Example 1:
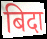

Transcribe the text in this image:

बिदा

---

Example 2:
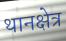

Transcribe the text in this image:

थानक्षेत्र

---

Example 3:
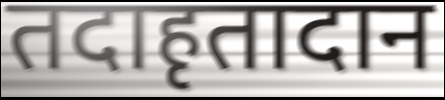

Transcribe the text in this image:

तदाहृतादान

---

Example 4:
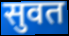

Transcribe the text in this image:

सुवत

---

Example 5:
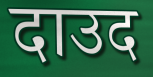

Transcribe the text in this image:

दाउद